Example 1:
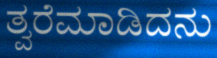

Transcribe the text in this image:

ತ್ವರೆಮಾಡಿದನು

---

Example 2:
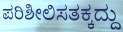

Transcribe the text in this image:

ಪರಿಶೀಲಿಸತಕ್ಕದ್ದು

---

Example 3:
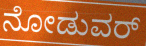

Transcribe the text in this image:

ನೋಡುವರ್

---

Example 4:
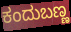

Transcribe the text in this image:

ಕಂದುಬಣ್ಣ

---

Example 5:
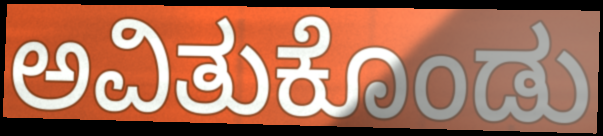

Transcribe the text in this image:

ಅವಿತುಕೊಂಡು